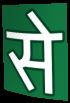
से